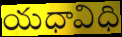
యధావిధి